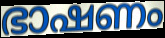
ഭാഷണം